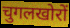
चुगलखोरों